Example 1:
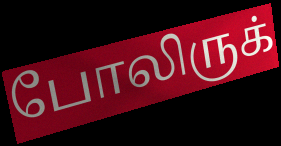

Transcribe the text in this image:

போலிருக்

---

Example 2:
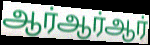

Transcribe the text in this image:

ஆர்ஆர்ஆர்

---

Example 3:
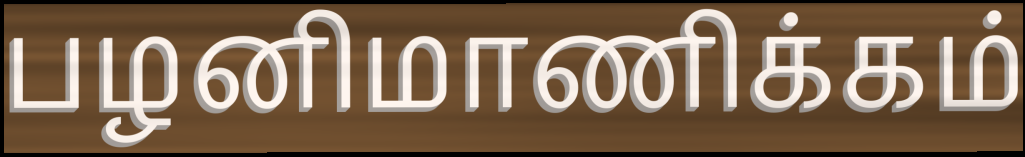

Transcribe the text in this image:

பழனிமாணிக்கம்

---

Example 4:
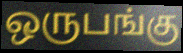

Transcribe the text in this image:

ஒருபங்கு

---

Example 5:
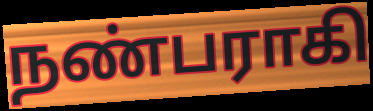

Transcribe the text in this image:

நண்பராகி